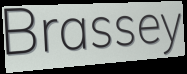
Brassey